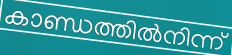
കാണ്ഡത്തിൽനിന്ന്